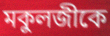
মকুলজীকে